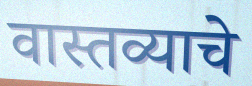
वास्तव्याचे